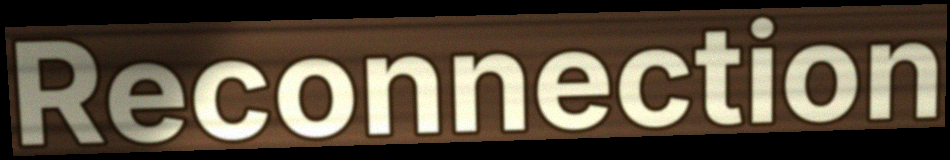
Reconnection